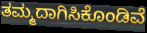
ತಮ್ಮದಾಗಿಸಿಕೊಂಡಿವೆ